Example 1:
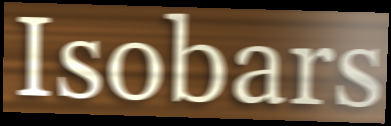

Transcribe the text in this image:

Isobars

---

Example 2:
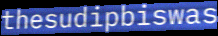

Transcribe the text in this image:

thesudipbiswas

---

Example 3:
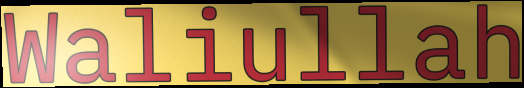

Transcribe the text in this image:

Waliullah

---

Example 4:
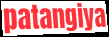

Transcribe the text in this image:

patangiya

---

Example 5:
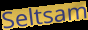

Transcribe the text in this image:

Seltsam